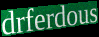
drferdous